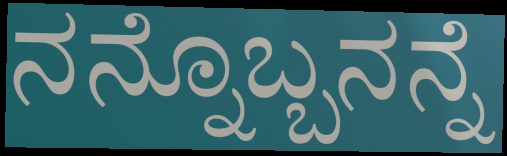
ನನ್ನೊಬ್ಬನನ್ನೆ